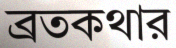
ব্রতকথার